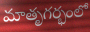
మాతృగర్భంలో